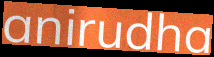
anirudha